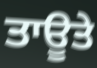
ਤਾਊਤੇ